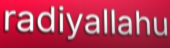
radiyallahu